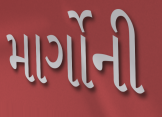
માર્ગોની